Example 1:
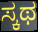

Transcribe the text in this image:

ಸ್ಕಥ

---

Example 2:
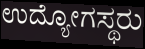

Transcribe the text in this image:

ಉದ್ಯೋಗಸ್ಥರು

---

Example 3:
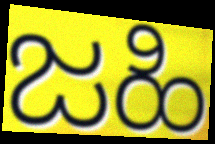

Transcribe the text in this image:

ಜಹಿ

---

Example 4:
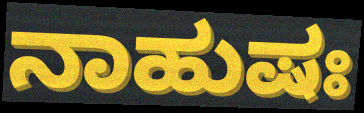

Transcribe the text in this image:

ನಾಹುಷಃ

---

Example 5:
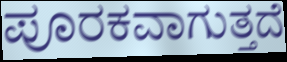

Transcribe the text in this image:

ಪೂರಕವಾಗುತ್ತದೆ